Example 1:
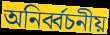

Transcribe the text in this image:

অনির্ব্বচনীয়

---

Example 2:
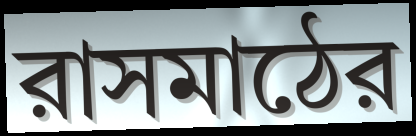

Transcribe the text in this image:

রাসমাঠের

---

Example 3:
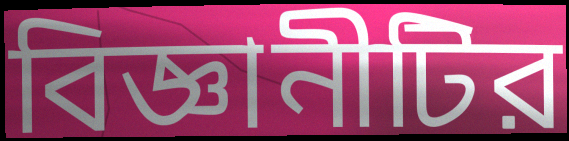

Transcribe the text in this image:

বিজ্ঞানীটির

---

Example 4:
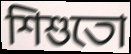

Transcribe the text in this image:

শিশুতো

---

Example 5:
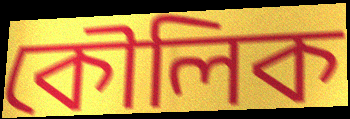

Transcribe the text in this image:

কৌলিক